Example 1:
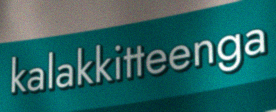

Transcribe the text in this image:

kalakkitteenga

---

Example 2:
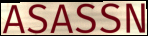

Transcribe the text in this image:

ASASSN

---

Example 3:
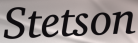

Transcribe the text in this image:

Stetson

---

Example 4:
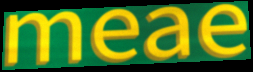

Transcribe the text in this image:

meae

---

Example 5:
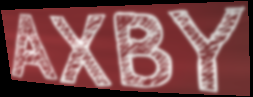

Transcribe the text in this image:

AXBY